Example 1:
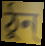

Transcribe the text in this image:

ঠুন্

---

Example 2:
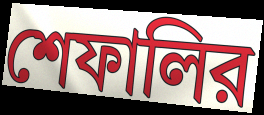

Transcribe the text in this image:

শেফালির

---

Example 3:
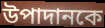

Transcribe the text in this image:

উপাদানকে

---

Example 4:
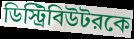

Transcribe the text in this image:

ডিস্ট্রিবিউটরকে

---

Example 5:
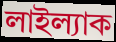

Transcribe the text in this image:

লাইল্যাক